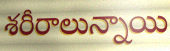
శరీరాలున్నాయి